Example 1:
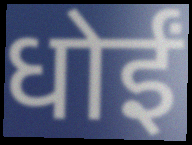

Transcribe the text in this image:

धोईं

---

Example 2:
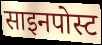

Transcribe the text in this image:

साइनपोस्ट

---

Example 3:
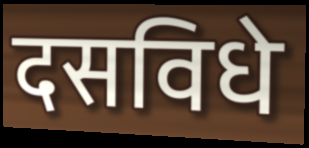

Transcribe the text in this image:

दसविधे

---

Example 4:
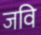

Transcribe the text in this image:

जवि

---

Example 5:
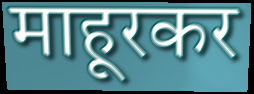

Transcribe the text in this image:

माहूरकर